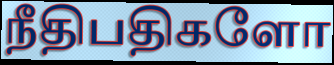
நீதிபதிகளோ